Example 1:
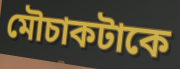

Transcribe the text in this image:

মৌচাকটাকে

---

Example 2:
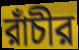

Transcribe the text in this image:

রাঁচীর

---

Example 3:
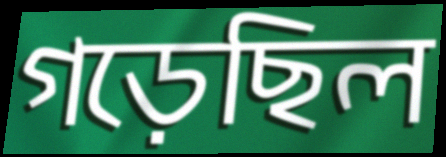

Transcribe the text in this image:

গড়েছিল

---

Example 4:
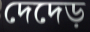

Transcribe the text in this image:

দেদেড়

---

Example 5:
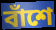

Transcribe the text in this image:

বাঁশে